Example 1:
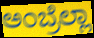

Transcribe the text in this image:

ಅಂಬ್ರೆಲ್ಲಾ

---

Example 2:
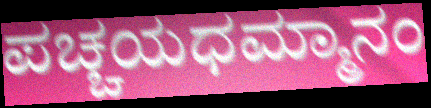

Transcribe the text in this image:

ಪಚ್ಚಯಧಮ್ಮಾನಂ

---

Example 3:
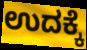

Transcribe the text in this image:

ಉದಕ್ಕೆ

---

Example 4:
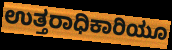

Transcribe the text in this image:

ಉತ್ತರಾಧಿಕಾರಿಯೂ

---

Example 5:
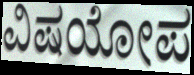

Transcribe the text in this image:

ವಿಷಯೋಪ